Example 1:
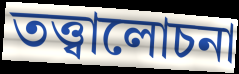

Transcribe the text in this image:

তত্ত্বালোচনা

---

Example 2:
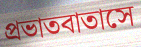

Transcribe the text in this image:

প্রভাতবাতাসে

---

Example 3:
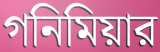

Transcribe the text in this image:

গনিমিয়ার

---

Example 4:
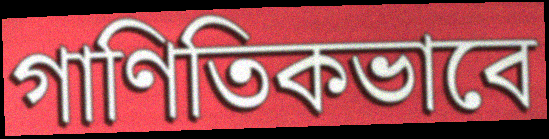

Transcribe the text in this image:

গাণিতিকভাবে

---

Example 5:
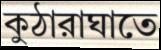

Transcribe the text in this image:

কুঠারাঘাতে